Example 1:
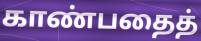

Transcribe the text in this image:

காண்பதைத்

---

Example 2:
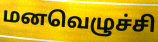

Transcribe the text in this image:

மனவெழுச்சி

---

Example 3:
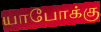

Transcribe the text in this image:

யாபோக்கு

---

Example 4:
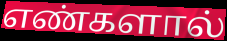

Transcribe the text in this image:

எண்களால்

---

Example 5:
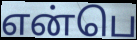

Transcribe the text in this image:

என்பெ